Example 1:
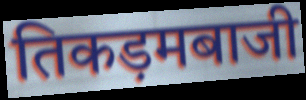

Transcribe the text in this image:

तिकड़मबाजी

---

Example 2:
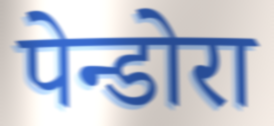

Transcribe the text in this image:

पेन्डोरा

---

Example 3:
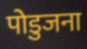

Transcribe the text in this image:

पोडुजना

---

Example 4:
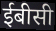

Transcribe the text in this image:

ईबीसी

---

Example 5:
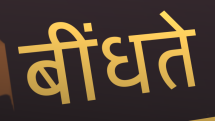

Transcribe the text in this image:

बींधते